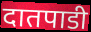
दातपाडी